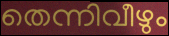
തെന്നിവീഴും